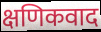
क्षणिकवाद